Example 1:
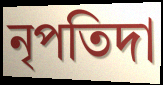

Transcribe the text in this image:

নৃপতিদা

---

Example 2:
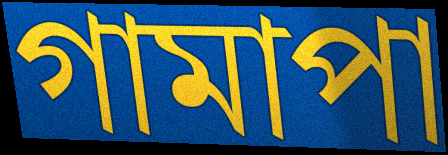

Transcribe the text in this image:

গামাপা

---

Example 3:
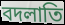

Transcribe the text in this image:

বদলাতি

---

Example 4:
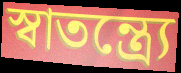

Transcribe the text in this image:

স্বাতন্ত্র্যে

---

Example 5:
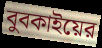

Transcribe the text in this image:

বুবকাইয়ের